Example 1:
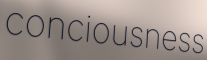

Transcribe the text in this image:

conciousness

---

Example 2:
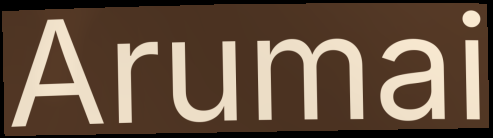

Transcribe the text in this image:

Arumai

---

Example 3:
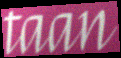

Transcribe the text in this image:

taan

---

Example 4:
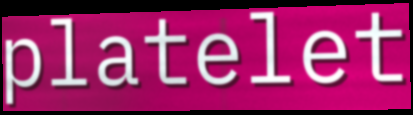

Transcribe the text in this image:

platelet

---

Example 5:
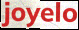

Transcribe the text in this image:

joyelo